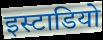
इस्टाडियो